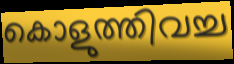
കൊളുത്തിവച്ച